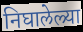
निघालेल्या